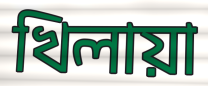
খিলায়া